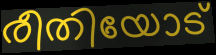
രീതിയോട്